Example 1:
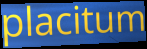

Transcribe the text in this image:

placitum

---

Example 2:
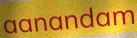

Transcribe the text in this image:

aanandam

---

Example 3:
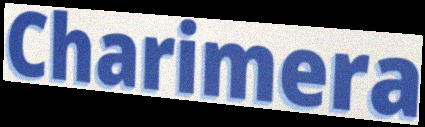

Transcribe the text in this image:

Charimera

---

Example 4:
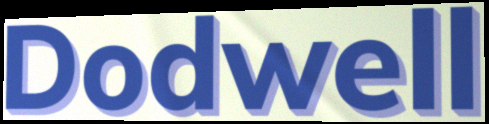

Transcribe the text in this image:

Dodwell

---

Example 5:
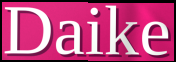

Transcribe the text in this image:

Daike